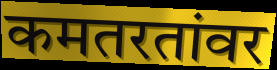
कमतरतांवर